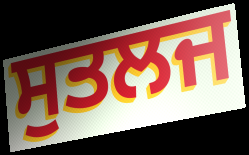
ਸੁਤਲਜ